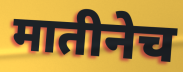
मातीनेच